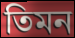
তিমন